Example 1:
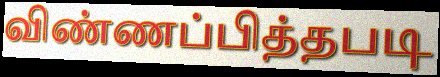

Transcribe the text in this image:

விண்ணப்பித்தபடி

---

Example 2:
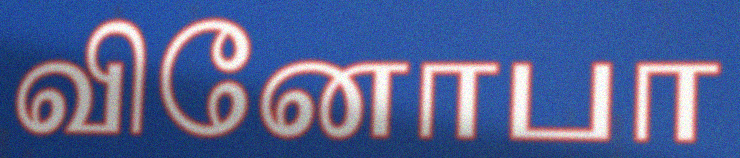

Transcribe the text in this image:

வினோபா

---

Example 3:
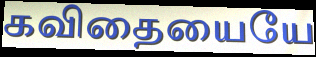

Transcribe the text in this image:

கவிதையையே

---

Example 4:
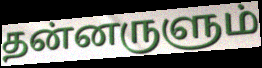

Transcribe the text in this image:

தன்னருளும்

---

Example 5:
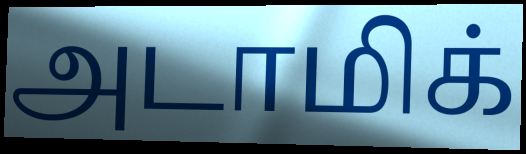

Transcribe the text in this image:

அடாமிக்